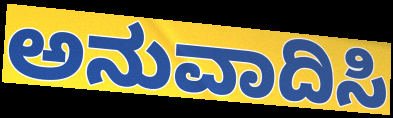
ಅನುವಾದಿಸಿ